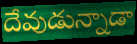
దేవుడున్నాడా